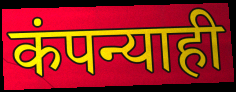
कंपन्याही